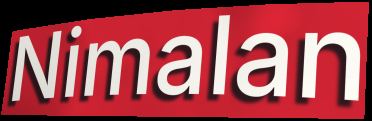
Nimalan